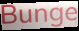
Bunge